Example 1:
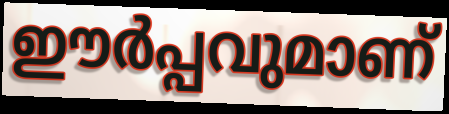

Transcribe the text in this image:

ഈർപ്പവുമാണ്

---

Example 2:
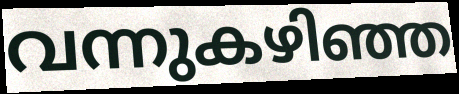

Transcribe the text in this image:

വന്നുകഴിഞ്ഞ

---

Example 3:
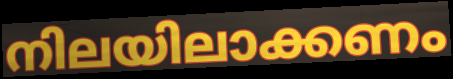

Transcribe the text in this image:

നിലയിലാക്കണം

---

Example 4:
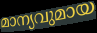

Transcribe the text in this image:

മാന്യവുമായ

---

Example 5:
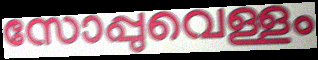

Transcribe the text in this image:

സോപ്പുവെള്ളം